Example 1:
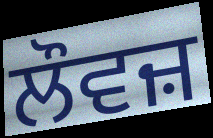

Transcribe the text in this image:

ਲੌਵਜ਼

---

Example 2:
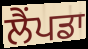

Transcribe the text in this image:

ਲੈਂਪਡਾ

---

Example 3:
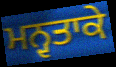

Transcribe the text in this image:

ਮਨ੍ਦਤਾਕੇ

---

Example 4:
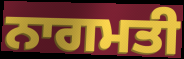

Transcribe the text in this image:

ਨਾਗਮਤੀ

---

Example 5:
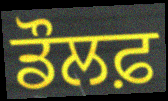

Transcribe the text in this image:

ਡੌਲਫ਼